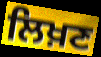
ਲਿਖ਼ਣ